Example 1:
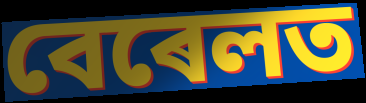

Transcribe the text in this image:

বেৰেলত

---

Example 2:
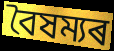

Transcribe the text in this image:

বৈষম্যৰ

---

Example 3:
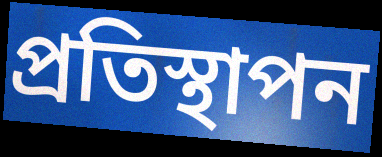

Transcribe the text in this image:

প্ৰতিস্থাপন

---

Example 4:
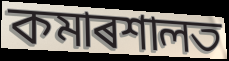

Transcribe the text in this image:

কমাৰশালত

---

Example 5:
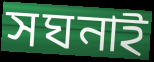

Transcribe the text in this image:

সঘনাই